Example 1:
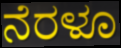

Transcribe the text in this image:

ನೆರಳೂ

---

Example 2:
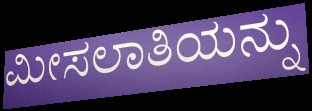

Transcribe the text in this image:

ಮೀಸಲಾತಿಯನ್ನು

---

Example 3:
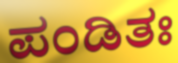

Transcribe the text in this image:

ಪಂಡಿತಃ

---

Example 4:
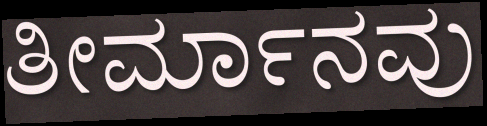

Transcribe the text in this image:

ತೀರ್ಮಾನವು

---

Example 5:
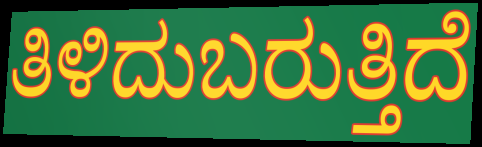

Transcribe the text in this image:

ತಿಳಿದುಬರುತ್ತಿದೆ